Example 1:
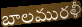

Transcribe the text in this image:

బాలమురళీ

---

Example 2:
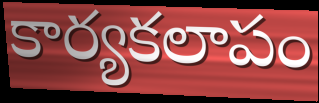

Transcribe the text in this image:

కార్యకలాపం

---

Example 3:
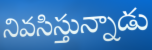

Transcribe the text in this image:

నివసిస్తున్నాడు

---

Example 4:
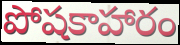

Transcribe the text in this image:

పోషకాహారం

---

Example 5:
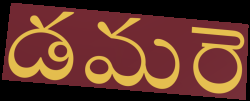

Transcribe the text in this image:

డమరె